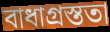
বাধাগ্ৰস্ততা